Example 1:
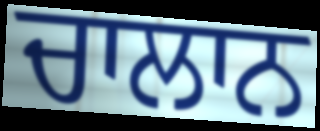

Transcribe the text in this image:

ਚਾਲਾਨ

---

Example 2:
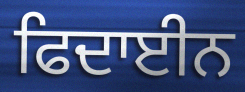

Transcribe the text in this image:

ਫਿਦਾਈਨ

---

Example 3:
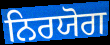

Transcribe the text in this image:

ਨਿਰਯੋਗ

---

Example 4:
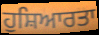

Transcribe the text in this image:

ਹੁਸ਼ਿਆਰਤਾ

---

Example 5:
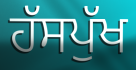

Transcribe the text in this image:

ਹੱਸਪੁੱਖ